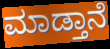
ಮಾಡ್ತಾನೆ